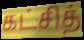
கட்சித்